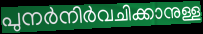
പുനർനിർവചിക്കാനുള്ള